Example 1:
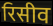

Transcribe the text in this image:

रिसीव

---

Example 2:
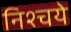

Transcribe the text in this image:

निश्चये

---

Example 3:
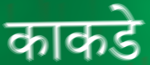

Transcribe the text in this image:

काकडे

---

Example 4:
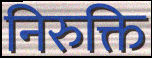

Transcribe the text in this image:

निरुक्ति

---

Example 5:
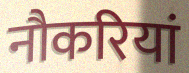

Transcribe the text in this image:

नौकरियां